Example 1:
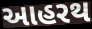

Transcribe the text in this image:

આહરથ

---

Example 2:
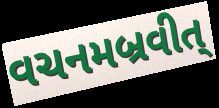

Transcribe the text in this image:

વચનમબ્રવીત્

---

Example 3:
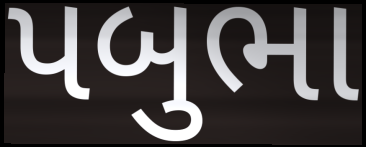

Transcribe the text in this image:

પબુભા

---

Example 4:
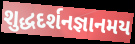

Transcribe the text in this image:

શુદ્ધદર્શનજ્ઞાનમય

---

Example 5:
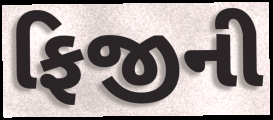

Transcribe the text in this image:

ફિજીની